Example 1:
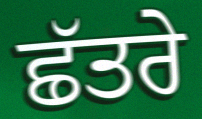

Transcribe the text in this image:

ਛੱਤਰੇ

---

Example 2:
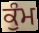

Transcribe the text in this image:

ਕੁੰਮ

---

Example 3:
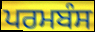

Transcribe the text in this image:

ਪਰਮਬੰਸ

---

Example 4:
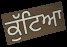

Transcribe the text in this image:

ਕੁੱਟਿਆ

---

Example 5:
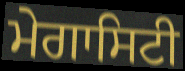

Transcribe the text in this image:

ਮੇਗਾਸਿਟੀ